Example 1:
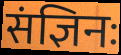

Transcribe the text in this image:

संज्ञिनः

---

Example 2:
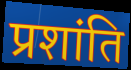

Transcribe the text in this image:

प्रशांति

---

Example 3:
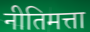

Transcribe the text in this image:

नीतिमत्ता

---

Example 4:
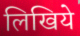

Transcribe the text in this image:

लिखिये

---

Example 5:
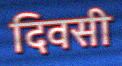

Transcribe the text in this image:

दिवसी